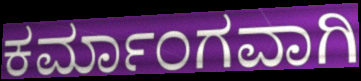
ಕರ್ಮಾಂಗವಾಗಿ